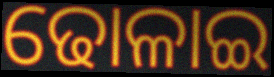
ଢୋଳାଇ